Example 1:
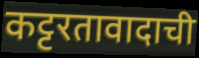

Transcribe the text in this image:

कट्टरतावादाची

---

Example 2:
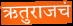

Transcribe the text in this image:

ऋतुराजचं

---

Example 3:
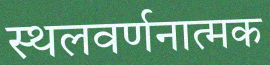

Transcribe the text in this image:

स्थलवर्णनात्मक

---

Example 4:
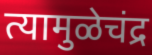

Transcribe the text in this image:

त्यामुळेचंद्र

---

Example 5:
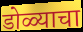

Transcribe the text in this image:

डोळ्याचा